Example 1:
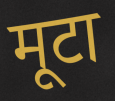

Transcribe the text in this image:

मूटा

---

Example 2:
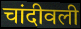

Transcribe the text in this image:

चांदीवली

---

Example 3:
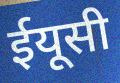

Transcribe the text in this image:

ईयूसी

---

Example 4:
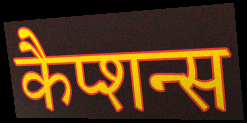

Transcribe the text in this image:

कैप्शन्स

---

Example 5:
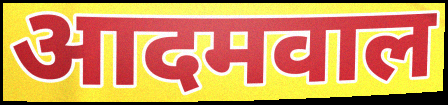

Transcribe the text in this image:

आदमवाल